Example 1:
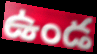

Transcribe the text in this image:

ఉండ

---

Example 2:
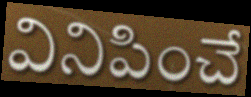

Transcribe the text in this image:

వినిపించే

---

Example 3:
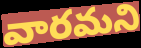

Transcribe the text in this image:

వారమని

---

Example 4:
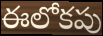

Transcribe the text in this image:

ఈలోకపు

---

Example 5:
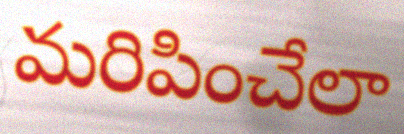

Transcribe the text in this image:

మరిపించేలా